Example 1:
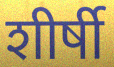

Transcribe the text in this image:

शीर्षी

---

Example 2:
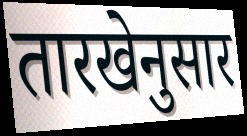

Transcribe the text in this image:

तारखेनुसार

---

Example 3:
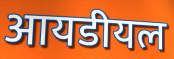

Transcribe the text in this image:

आयडीयल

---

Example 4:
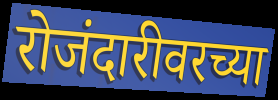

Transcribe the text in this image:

रोजंदारीवरच्या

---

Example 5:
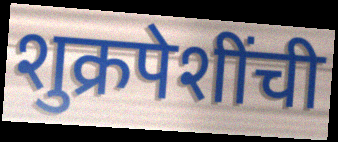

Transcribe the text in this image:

शुक्रपेशींची